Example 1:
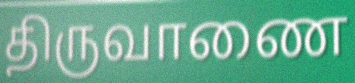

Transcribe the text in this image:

திருவாணை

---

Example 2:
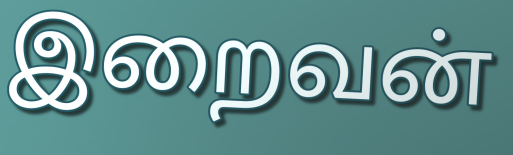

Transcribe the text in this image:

இறைவன்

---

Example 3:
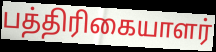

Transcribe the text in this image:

பத்திரிகையாளர்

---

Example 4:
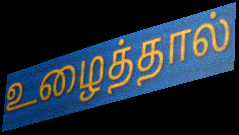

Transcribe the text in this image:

உழைத்தால்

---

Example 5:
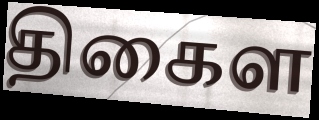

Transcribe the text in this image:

திகைள